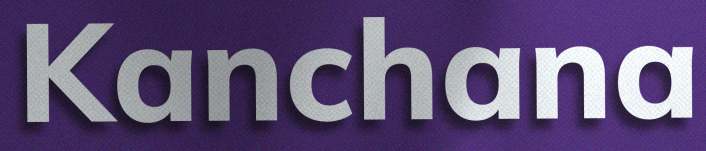
Kanchana